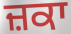
ਜ਼ਕਾ